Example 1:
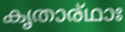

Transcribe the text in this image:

കൃതാര്ഥാഃ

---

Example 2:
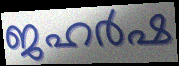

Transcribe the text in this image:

ജഹർഷ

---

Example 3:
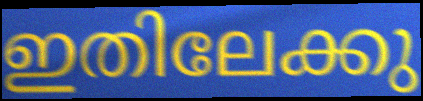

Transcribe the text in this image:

ഇതിലേക്കു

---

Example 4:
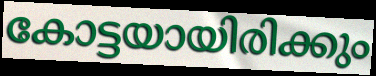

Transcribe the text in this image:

കോട്ടയായിരിക്കും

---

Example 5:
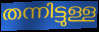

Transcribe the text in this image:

തന്നിട്ടുള്ള